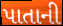
પાતાની